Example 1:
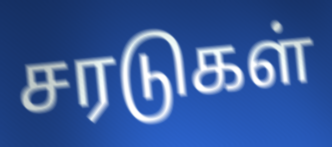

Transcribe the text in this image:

சரடுகள்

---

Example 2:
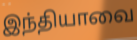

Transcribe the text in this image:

இந்தியாவை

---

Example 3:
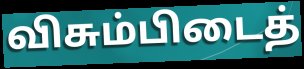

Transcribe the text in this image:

விசும்பிடைத்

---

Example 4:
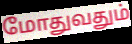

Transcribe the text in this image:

மோதுவதும்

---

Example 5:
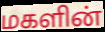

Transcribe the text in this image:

மகளின்